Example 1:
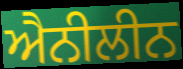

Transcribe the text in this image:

ਐਨੀਲੀਨ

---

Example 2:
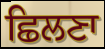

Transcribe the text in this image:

ਛਿਲਣਾ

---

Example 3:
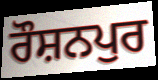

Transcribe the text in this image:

ਰੌਸ਼ਨਪੁਰ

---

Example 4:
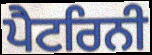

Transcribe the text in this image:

ਪੈਟਰਿਨੀ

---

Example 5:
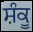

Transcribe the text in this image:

ਸ਼ੰਕੂ